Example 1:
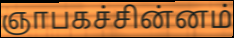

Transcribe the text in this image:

ஞாபகச்சின்னம்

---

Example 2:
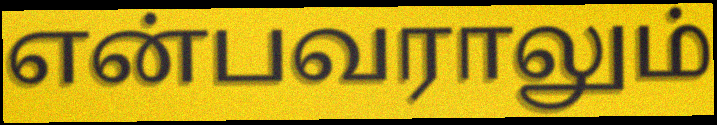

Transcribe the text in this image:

என்பவராலும்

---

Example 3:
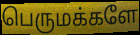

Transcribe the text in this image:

பெருமக்களே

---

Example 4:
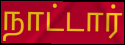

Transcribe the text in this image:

நாட்டார்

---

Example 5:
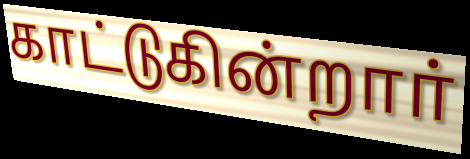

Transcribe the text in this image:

காட்டுகின்றார்